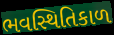
ભવસ્થિતિકાળ